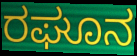
ರಘೂನ